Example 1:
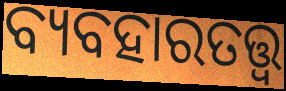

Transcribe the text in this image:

ବ୍ୟବହାରତତ୍ତ୍ବ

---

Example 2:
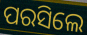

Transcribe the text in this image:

ପରସିଲେ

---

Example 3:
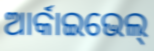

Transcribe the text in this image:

ଆର୍କାଇଭେଲ୍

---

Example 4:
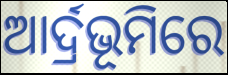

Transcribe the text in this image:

ଆର୍ଦ୍ରଭୂମିରେ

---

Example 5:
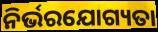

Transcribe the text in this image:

ନିର୍ଭରଯୋଗ୍ୟତା